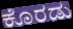
ಕೊರಡು